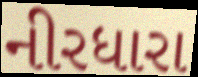
નીરધારા